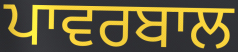
ਪਾਵਰਬਾਲ